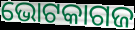
ଭୋଟକାଗଜ